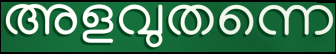
അളവുതന്നെ